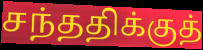
சந்ததிக்குத்